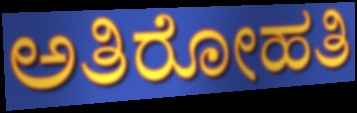
ಅತಿರೋಹತಿ